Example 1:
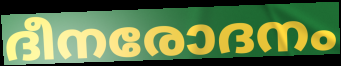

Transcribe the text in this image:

ദീനരോദനം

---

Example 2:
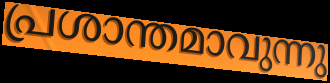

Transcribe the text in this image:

പ്രശാന്തമാവുന്നു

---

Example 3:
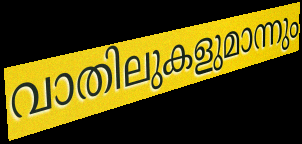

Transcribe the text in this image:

വാതിലുകളുമാന്നും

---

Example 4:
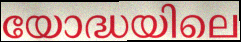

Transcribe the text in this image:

യോദ്ധയിലെ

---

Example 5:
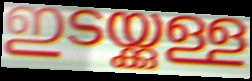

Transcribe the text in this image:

ഇടയ്ക്കുള്ള